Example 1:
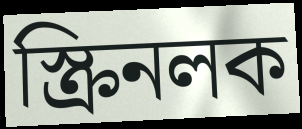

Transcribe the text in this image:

স্ক্রিনলক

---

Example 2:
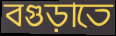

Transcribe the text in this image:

বগুড়াতে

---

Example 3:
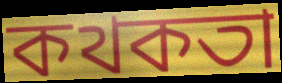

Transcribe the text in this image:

কথকতা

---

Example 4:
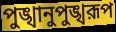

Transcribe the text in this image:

পুঙ্খানুপুঙ্খরূপ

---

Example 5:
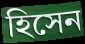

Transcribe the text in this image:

হিসেন